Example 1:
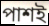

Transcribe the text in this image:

পাশই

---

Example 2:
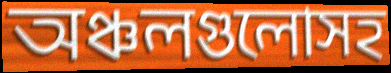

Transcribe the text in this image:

অঞ্চলগুলোসহ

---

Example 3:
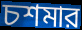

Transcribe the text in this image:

চশমার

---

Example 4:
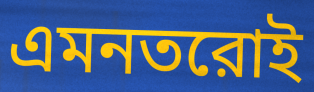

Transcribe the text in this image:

এমনতরোই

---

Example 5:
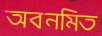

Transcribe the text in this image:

অবনমিত